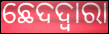
ଛେଦଦ୍ୱାରା